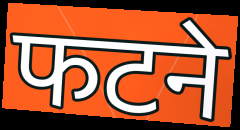
फटने